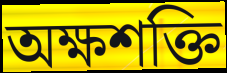
অক্ষশক্তি